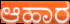
ಆಹಾರ